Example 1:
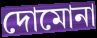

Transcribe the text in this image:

দোমোনা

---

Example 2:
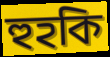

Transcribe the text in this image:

হুহকি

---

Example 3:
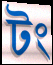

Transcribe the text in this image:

টং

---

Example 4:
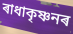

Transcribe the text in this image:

ৰাধাকৃষ্ণনৰ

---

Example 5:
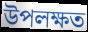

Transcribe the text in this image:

উপলক্ষত